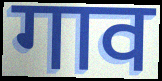
गाव